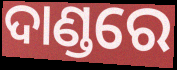
ଦାଣ୍ଡରେ